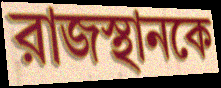
রাজস্থানকে